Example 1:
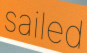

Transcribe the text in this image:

sailed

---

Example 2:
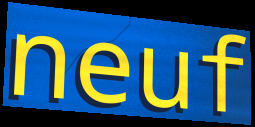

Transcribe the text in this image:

neuf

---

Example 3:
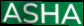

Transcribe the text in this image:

ASHA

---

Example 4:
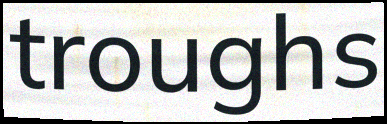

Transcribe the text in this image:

troughs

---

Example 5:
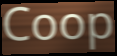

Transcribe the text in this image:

Coop